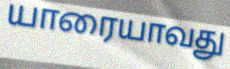
யாரையாவது